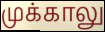
முக்காலு